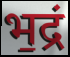
भ॒द्रं